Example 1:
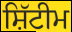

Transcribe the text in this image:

ਸ਼ਿੱਟੀਮ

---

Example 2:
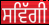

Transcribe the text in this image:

ਸਵਿੱਗੀ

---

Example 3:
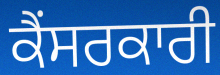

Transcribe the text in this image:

ਕੈਂਸਰਕਾਰੀ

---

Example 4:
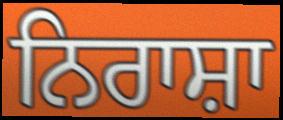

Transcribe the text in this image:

ਨਿਰਾਸ਼ਾ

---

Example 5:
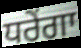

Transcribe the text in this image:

ਧਰੇਂਗਾ